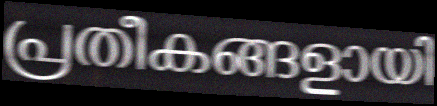
പ്രതീകങ്ങളായി